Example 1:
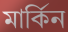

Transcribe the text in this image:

মাৰ্কিন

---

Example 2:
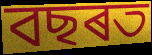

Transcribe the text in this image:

বছৰত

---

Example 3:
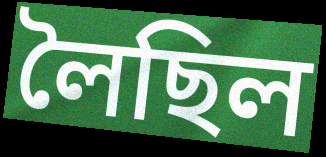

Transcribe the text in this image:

লৈছিল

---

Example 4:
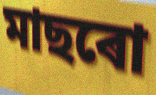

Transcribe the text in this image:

মাছৰো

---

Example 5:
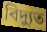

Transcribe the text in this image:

বিদ্যুত